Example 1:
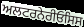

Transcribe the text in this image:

ਅਲਟਰਨੇਰੀਓਸਿਸ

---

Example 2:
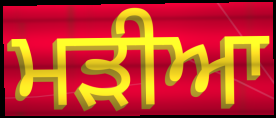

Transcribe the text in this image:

ਮਡ਼ੀਆ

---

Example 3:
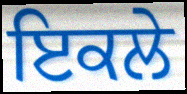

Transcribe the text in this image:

ਇਕਲੇ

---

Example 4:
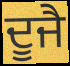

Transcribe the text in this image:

ਦੂਜੈ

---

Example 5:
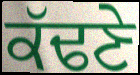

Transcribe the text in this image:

ਕੱਢਣੇ